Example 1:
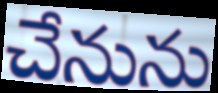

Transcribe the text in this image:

చేనును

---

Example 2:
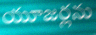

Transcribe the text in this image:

యూజర్లను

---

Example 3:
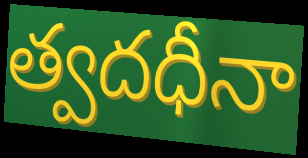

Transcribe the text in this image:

త్వదధీనా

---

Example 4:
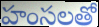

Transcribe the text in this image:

హంసలతో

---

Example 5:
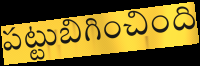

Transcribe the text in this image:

పట్టుబిగించింది